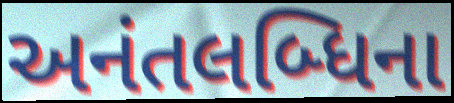
અનંતલબ્ધિના